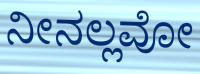
ನೀನಲ್ಲವೋ